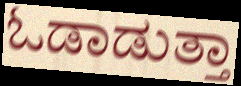
ಓಡಾಡುತ್ತಾ